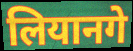
लियानगे